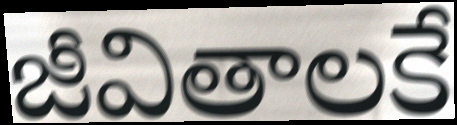
జీవితాలకే